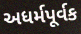
અધર્મપૂર્વક